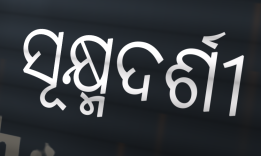
ସୂକ୍ଷ୍ମଦର୍ଶୀ